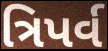
ત્રિપર્વ